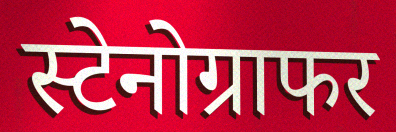
स्टेनोग्राफर